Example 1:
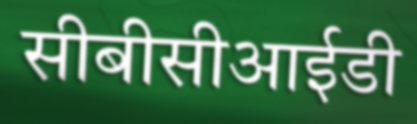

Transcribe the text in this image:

सीबीसीआईडी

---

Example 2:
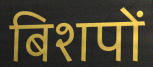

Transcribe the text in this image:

बिशपों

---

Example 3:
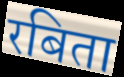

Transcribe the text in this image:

रबिता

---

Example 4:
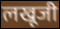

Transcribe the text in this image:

लखूजी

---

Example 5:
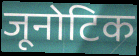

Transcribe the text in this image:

जूनोटिक